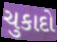
ચુકાદો